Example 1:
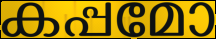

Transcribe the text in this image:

കപ്പമോ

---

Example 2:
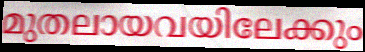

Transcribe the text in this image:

മുതലായവയിലേക്കും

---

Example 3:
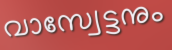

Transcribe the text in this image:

വാസ്വേട്ടനും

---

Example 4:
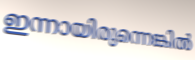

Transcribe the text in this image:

ഇന്നായിരുന്നെങ്കിൽ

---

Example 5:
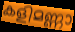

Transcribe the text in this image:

കളിമണ്ണാ